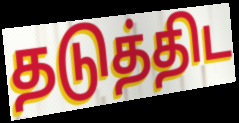
தடுத்திட